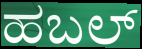
ಹಬಲ್